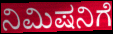
ನಿಮಿಷನಿಗೆ